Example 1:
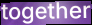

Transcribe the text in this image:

together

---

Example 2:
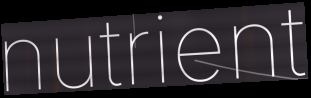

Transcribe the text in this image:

nutrient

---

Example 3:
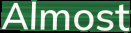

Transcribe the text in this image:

Almost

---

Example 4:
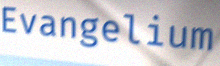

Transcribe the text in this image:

Evangelium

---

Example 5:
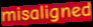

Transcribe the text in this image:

misaligned